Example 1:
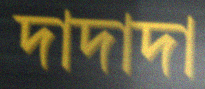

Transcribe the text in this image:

দাদাদা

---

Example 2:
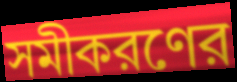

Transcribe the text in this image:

সমীকরণের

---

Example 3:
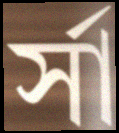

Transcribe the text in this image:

র্সা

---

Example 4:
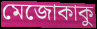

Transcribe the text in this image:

মেজোকাকু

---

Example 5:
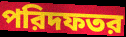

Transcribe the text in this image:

পরিদফতর